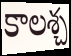
కాలశ్చ